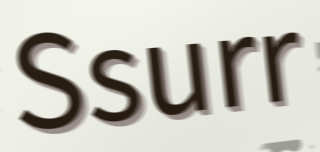
Ssurr